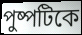
পুষ্পটিকে